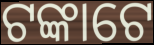
ଟଙ୍କାଟେ